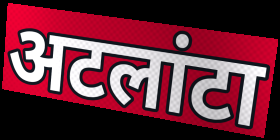
अटलांटा